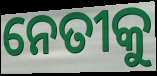
ନେତୀକୁ